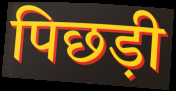
पिछड़ी